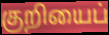
குறியைப்